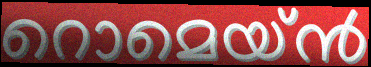
റൊമെയ്ൻ